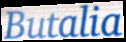
Butalia